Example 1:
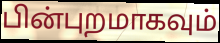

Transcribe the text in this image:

பின்புறமாகவும்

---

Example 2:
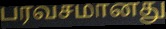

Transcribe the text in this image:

பரவசமானது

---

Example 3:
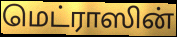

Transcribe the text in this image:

மெட்ராஸின்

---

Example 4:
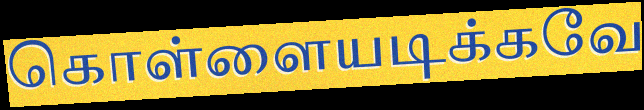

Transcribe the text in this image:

கொள்ளையடிக்கவே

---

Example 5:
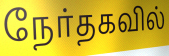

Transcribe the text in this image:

நேர்தகவில்